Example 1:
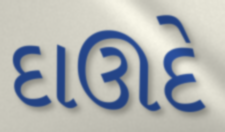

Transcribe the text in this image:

દાઊદે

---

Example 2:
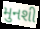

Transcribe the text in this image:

મુનશી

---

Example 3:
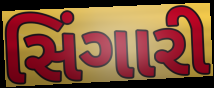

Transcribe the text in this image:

સિંગારી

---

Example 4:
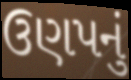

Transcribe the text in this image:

ઉણપનું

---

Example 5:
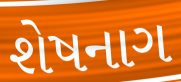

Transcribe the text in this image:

શેષનાગ